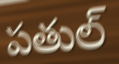
పతుల్